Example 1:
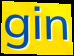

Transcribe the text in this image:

gin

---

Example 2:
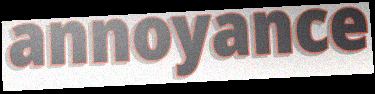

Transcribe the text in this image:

annoyance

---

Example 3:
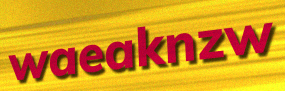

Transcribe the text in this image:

waeaknzw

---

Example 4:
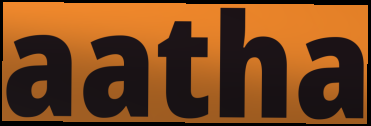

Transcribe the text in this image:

aatha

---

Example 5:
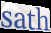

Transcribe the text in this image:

sath